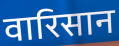
वारिसान